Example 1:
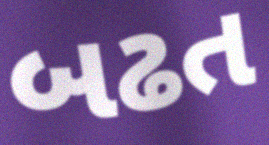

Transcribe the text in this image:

બઢત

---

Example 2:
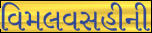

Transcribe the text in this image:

વિમલવસહીની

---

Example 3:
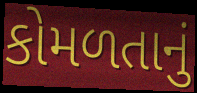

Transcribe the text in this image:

કોમળતાનું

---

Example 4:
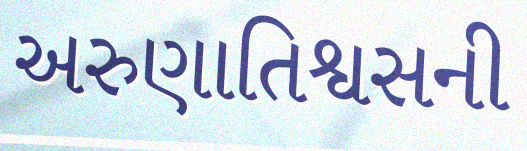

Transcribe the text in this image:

અરુણાતિશ્વસની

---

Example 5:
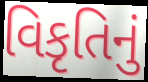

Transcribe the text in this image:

વિકૃતિનું